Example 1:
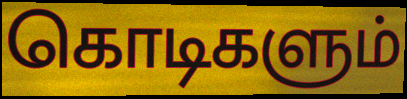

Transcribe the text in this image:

கொடிகளும்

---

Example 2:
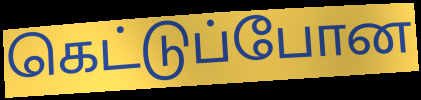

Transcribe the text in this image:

கெட்டுப்போன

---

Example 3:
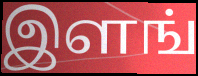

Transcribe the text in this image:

இளங்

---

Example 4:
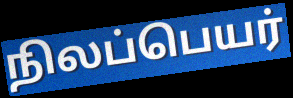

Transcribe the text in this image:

நிலப்பெயர்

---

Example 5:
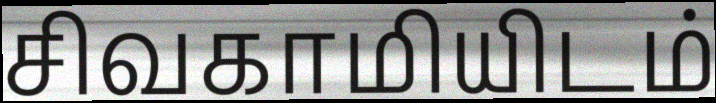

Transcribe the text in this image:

சிவகாமியிடம்